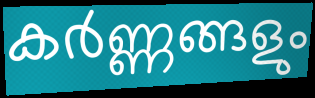
കർണ്ണങ്ങളും